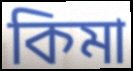
কিমা